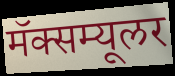
मॅक्सम्यूलर